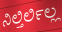
ನಿಲ್ತಿರ್ಲಿಲ್ಲ